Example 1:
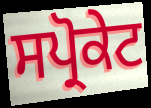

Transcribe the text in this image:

ਸਪ੍ਰੋਕੇਟ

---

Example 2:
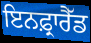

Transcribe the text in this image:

ਇਨਫ਼੍ਰਾਰੈੱਡ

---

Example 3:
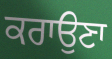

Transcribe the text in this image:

ਕਰਾਉਣਾ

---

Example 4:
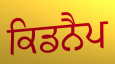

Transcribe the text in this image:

ਕਿਡਨੈਪ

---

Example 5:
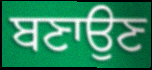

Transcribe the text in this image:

ਬਣਾਉਣ